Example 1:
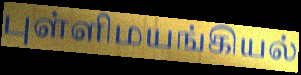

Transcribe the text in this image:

புள்ளிமயங்கியல்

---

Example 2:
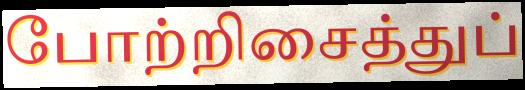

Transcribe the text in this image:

போற்றிசைத்துப்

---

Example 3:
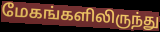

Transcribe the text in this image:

மேகங்களிலிருந்து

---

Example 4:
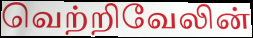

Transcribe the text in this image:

வெற்றிவேலின்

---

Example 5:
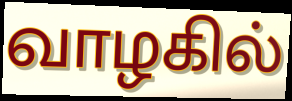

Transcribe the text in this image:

வாழகில்